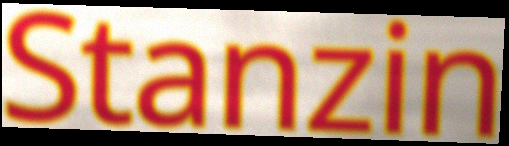
Stanzin